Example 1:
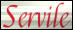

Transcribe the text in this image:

Servile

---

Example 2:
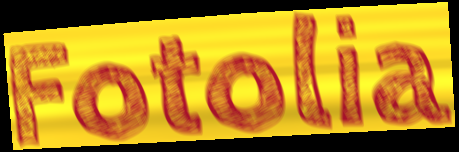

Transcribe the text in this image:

Fotolia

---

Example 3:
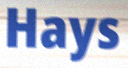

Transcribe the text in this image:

Hays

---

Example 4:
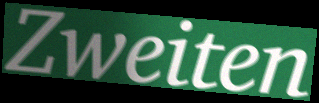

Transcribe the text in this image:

Zweiten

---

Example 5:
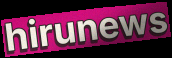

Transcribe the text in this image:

hirunews